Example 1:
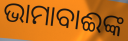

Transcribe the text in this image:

ଭାମାବାଈଙ୍କ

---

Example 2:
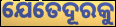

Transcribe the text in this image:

ଯେତେଦୂରକୁ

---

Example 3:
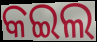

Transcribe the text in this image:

କଇଲ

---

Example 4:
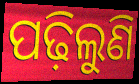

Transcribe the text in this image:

ପଢ଼ିଲୁଣି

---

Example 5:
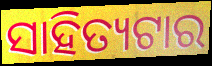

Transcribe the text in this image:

ସାହିତ୍ୟଟାର